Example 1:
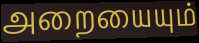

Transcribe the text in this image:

அறையையும்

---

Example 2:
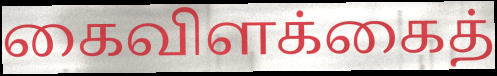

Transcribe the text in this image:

கைவிளக்கைத்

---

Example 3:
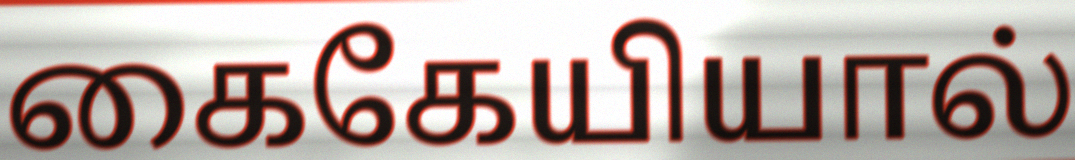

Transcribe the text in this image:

கைகேயியால்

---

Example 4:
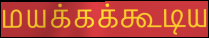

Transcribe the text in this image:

மயக்கக்கூடிய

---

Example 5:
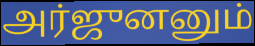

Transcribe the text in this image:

அர்ஜுனனும்